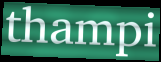
thampi